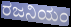
ರಜನಿಯಂ